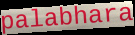
palabhara